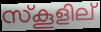
സ്കൂളില്